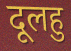
दूलहु